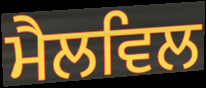
ਮੈਲਵਿਲ